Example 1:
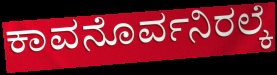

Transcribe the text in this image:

ಕಾವನೊರ್ವನಿರಲ್ಕೆ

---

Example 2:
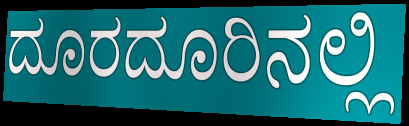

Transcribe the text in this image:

ದೂರದೂರಿನಲ್ಲಿ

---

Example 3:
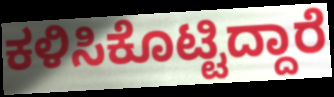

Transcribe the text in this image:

ಕಳಿಸಿಕೊಟ್ಟಿದ್ದಾರೆ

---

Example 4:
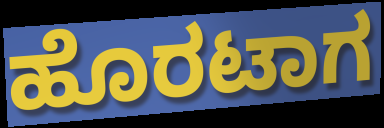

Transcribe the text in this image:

ಹೊರಟಾಗ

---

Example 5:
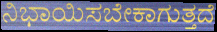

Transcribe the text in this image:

ನಿಭಾಯಿಸಬೇಕಾಗುತ್ತದೆ